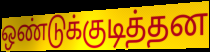
ஒண்டுக்குடித்தன